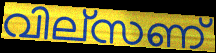
വില്സണ്